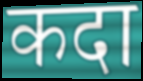
कदा